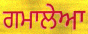
ਗਮਾਲੇਆ